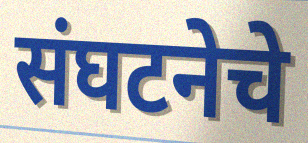
संघटनेचे